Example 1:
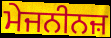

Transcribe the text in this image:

ਮੇਜਨੀਨਜ਼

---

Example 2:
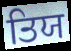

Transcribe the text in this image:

ਤਿਯ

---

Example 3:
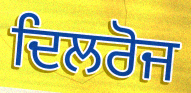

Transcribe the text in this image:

ਦਿਲਰੋਜ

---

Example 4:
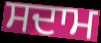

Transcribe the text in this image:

ਸਦਾਮ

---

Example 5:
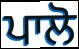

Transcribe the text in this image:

ਪਾਲੋ